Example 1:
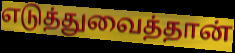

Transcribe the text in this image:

எடுத்துவைத்தான்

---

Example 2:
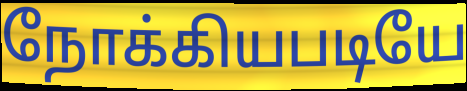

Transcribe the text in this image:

நோக்கியபடியே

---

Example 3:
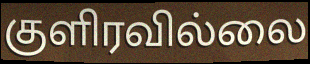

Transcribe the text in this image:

குளிரவில்லை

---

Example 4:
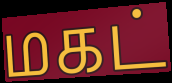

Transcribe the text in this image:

மகட்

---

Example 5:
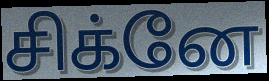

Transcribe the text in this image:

சிக்னே